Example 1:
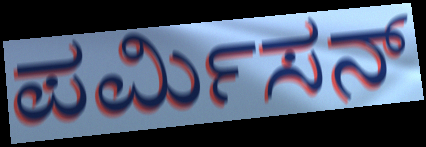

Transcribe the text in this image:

ಪರ್ಮಿಸನ್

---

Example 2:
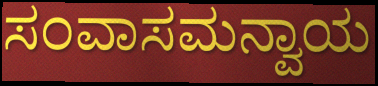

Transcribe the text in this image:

ಸಂವಾಸಮನ್ವಾಯ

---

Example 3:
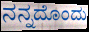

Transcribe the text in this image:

ನನ್ನದೊಂದು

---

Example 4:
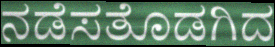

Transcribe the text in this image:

ನಡೆಸತೊಡಗಿದ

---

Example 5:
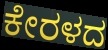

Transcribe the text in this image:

ಕೇರಳದ